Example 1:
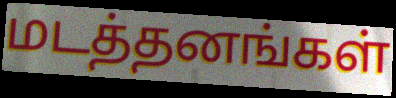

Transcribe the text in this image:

மடத்தனங்கள்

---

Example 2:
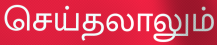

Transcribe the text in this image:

செய்தலாலும்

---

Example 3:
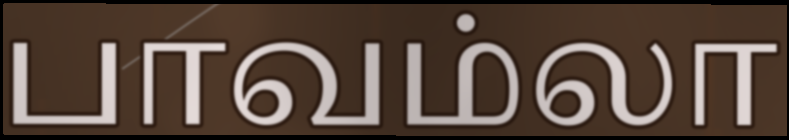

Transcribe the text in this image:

பாவம்லா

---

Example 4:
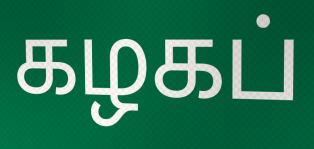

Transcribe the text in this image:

கழகப்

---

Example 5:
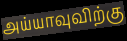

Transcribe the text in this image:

அய்யாவுவிற்கு